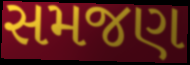
સમજણ